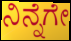
ನಿನ್ನೆಗೇ